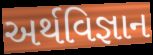
અર્થવિજ્ઞાન